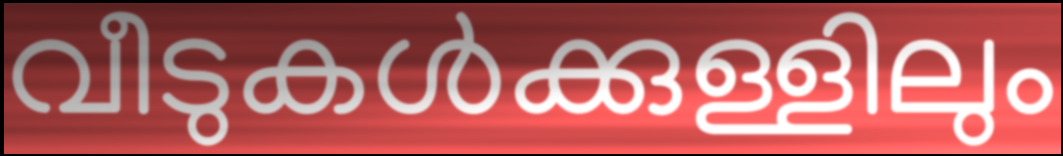
വീടുകൾക്കുള്ളിലും